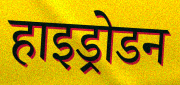
हाइड्रोडन